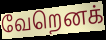
வேறெனக்